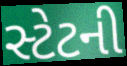
સ્ટેટની